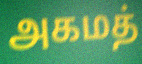
அகமத்